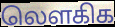
லௌகிக